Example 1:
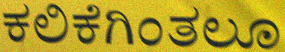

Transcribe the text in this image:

ಕಲಿಕೆಗಿಂತಲೂ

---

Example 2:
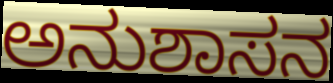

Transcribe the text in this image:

ಅನುಶಾಸನ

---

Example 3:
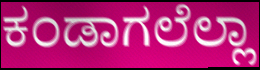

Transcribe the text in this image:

ಕಂಡಾಗಲೆಲ್ಲಾ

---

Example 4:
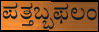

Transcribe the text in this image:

ಪತ್ತಬ್ಬಫಲಂ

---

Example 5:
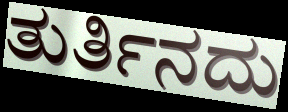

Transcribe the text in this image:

ತುರ್ತಿನದು